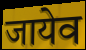
जायेव